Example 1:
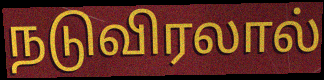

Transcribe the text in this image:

நடுவிரலால்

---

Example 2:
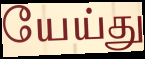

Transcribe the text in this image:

யேய்து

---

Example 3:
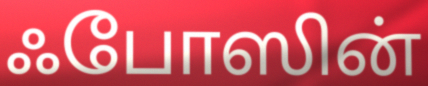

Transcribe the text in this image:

ஃபோஸின்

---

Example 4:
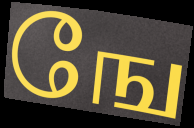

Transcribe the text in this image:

ஙே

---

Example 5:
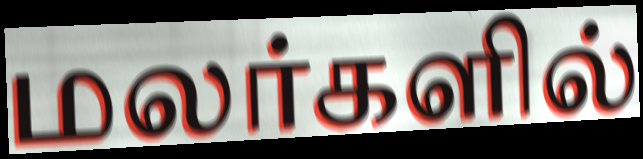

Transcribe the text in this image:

மலர்களில்